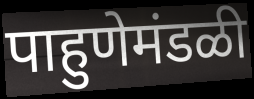
पाहुणेमंडळी